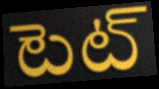
టెట్